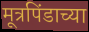
मूत्रपिंडाच्या